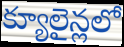
క్యూలైన్లలో